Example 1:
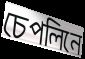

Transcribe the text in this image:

চেপলিনে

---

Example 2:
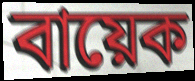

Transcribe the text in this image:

বায়েক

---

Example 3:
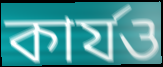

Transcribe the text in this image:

কাৰ্যও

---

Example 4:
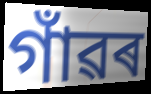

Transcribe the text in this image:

গাঁৱৰ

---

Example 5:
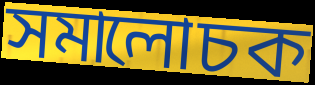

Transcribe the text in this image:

সমালোচক